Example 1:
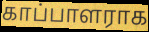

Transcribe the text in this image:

காப்பாளராக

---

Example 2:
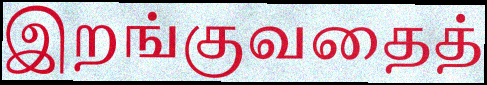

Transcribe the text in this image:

இறங்குவதைத்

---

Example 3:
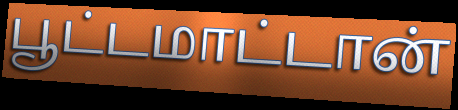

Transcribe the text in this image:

பூட்டமாட்டான்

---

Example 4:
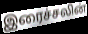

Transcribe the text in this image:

இரைச்சலின்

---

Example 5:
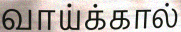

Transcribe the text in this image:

வாய்க்கால்